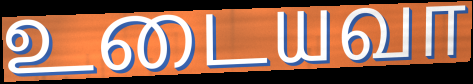
உடையவா